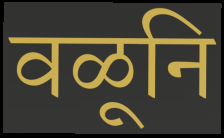
वळूनि